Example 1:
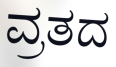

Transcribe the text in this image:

ವ್ರತದ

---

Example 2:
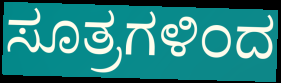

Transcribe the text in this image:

ಸೂತ್ರಗಳಿಂದ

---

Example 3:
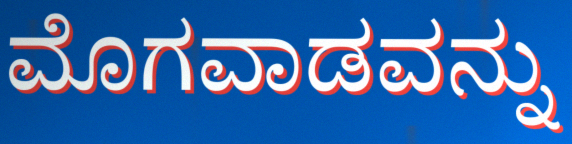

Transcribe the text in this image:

ಮೊಗವಾಡವನ್ನು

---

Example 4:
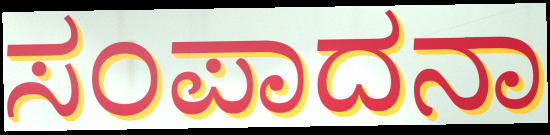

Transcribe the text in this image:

ಸಂಪಾದನಾ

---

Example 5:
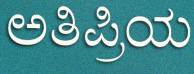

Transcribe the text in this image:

ಅತಿಪ್ರಿಯ